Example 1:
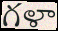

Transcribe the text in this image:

గళా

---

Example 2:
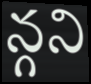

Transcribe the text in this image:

న్గని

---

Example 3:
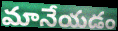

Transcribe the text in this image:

మానేయడం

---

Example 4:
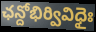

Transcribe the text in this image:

ఛన్దోభిర్వివిధైః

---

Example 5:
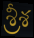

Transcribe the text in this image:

శ్రీశ